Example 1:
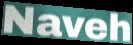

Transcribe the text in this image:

Naveh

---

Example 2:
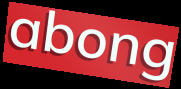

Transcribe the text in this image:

abong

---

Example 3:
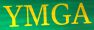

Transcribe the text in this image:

YMGA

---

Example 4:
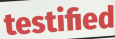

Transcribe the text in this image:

testified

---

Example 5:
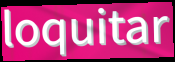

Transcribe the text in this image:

loquitar